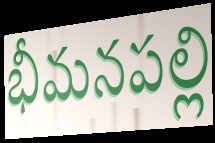
భీమనపల్లి